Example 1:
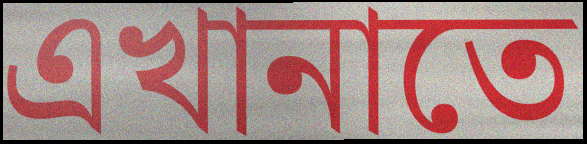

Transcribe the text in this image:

এখানাতে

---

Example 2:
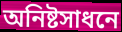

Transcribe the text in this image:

অনিষ্টসাধনে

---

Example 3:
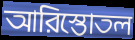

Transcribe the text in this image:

আরিস্তোতল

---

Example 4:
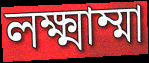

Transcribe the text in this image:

লক্ষ্মাম্মা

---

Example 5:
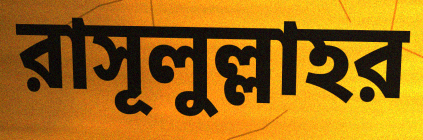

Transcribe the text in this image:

রাসূলুল্লাহর